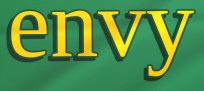
envy